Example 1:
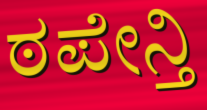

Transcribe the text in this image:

ಠಪೇನ್ತಿ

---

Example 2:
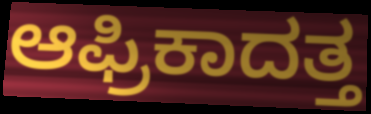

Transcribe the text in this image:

ಆಫ್ರಿಕಾದತ್ತ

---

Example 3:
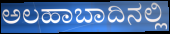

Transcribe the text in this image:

ಅಲಹಾಬಾದಿನಲ್ಲಿ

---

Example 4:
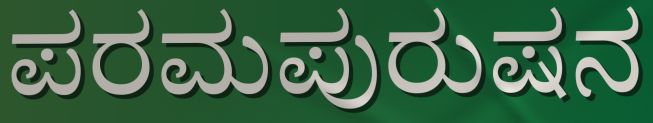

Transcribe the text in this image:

ಪರಮಪುರುಷನ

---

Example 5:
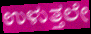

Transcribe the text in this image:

ಉಳುತ್ತಲೇ